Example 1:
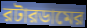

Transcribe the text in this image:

রটারডামের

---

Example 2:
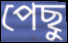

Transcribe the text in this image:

পেছু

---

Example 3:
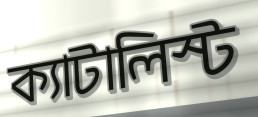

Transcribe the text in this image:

ক্যাটালিস্ট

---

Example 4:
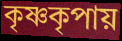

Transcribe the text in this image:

কৃষ্ণকৃপায়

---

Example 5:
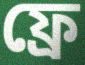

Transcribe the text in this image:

ফ্রে